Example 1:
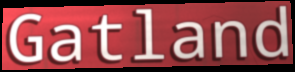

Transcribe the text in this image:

Gatland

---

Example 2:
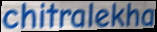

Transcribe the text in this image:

chitralekha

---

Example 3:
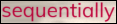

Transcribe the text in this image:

sequentially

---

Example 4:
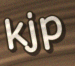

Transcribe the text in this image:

kjp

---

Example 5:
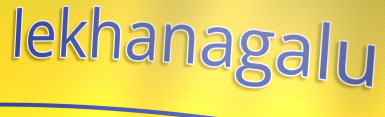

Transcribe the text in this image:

lekhanagalu